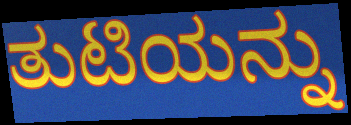
ತುಟಿಯನ್ನು